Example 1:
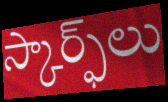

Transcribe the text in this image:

స్కార్ఫ్‌లు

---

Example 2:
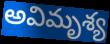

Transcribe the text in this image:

అవిమృశ్య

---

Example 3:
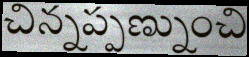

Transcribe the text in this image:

చిన్నప్పణ్నుంచి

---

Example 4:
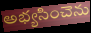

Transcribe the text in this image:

అభ్యసించెను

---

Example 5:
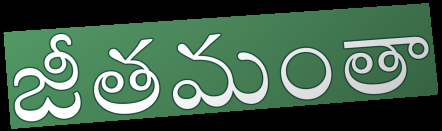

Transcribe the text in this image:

జీతమంతా